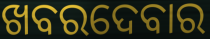
ଖବରଦେବାର